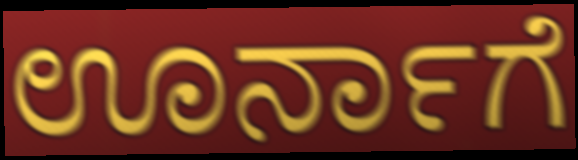
ಊರ್ನಾಗೆ